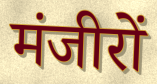
मंजीरों